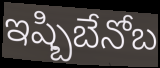
ఇష్బిబేనోబ